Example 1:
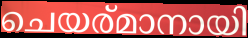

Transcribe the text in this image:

ചെയര്മാനായി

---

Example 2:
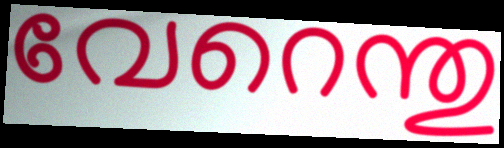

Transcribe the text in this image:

വേറെന്തു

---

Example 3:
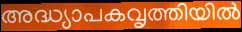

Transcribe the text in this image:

അദ്ധ്യാപകവൃത്തിയിൽ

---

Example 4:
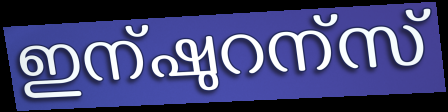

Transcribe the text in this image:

ഇന്ഷുറന്സ്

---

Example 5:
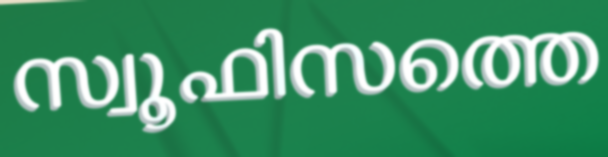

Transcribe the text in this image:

സ്വൂഫിസത്തെ